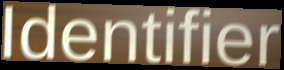
Identifier